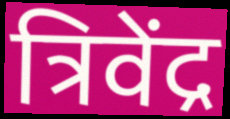
त्रिवेंद्र